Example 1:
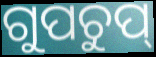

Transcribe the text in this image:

ଗୁପଚୁପ୍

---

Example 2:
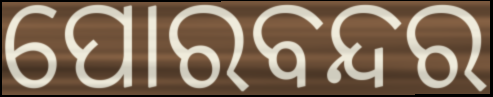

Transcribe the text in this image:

ପୋରବନ୍ଦର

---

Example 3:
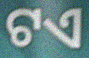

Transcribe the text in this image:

ଟଏ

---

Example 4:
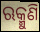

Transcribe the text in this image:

ଋକ୍ମୁଣି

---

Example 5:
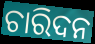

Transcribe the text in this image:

ଚାରିଦନ